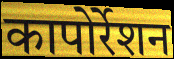
कापोर्रेशन